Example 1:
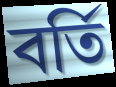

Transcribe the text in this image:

বৰ্তি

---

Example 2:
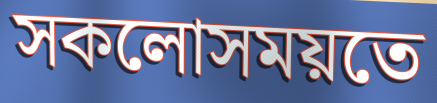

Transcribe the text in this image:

সকলোসময়তে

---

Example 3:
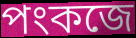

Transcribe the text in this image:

পংকজে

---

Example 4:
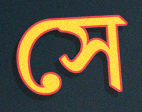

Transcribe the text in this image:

সে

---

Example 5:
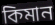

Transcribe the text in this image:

কিমান